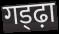
गड्ढ़ा